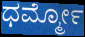
ಧರ್ಮ್ಮೋ